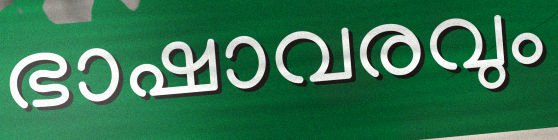
ഭാഷാവരവും